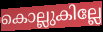
കൊല്ലുകില്ലേ